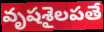
వృషశైలపతే